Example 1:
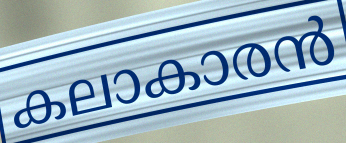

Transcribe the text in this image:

കലാകാരൻ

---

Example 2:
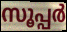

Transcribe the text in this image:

സൂപ്പർ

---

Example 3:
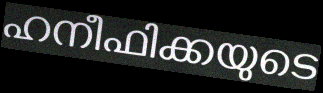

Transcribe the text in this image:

ഹനീഫിക്കയുടെ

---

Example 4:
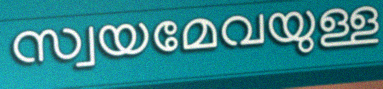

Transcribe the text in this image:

സ്വയമേവയുള്ള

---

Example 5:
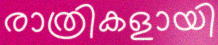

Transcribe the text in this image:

രാത്രികളായി